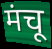
मंचू